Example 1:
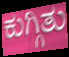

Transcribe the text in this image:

ಕುಗ್ಗಿತು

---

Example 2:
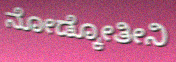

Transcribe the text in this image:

ನೋಡ್ಕೋತೀನಿ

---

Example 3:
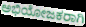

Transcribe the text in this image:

ಅಭಿಯೋಜಕರಾಗಿ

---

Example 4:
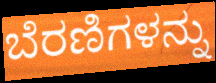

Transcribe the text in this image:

ಬೆರಣಿಗಳನ್ನು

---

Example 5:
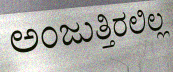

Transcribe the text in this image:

ಅಂಜುತ್ತಿರಲಿಲ್ಲ